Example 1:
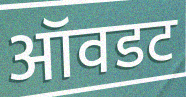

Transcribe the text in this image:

ऑवडट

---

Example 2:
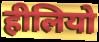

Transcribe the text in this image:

हीलियो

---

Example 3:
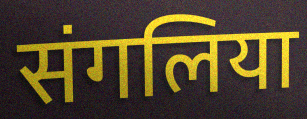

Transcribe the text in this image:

संगलिया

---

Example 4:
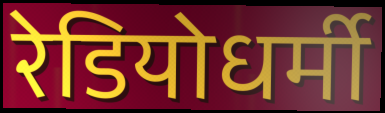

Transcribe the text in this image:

रेडियोधर्मी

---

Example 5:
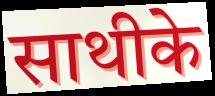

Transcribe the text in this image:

साथीके